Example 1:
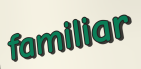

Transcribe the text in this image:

familiar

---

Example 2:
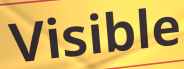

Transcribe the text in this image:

Visible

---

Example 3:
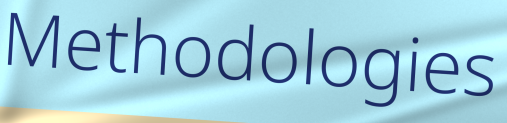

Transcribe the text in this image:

Methodologies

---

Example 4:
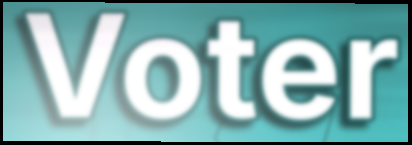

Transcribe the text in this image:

Voter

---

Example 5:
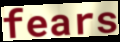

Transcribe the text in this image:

fears